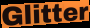
Glitter